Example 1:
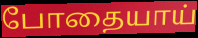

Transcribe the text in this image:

போதையாய்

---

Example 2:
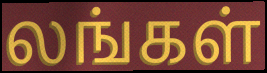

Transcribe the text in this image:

லங்கள்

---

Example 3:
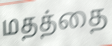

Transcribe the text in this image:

மதத்தை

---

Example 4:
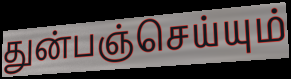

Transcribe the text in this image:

துன்பஞ்செய்யும்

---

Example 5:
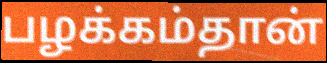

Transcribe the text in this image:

பழக்கம்தான்